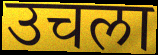
उचला